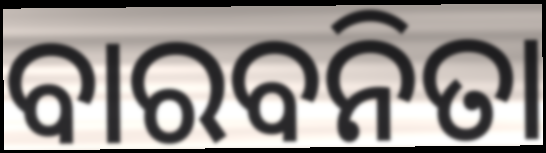
ବାରବନିତା